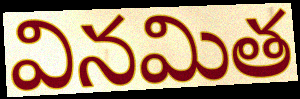
వినమిత